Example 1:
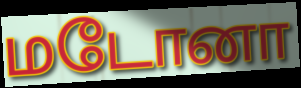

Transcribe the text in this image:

மடோனா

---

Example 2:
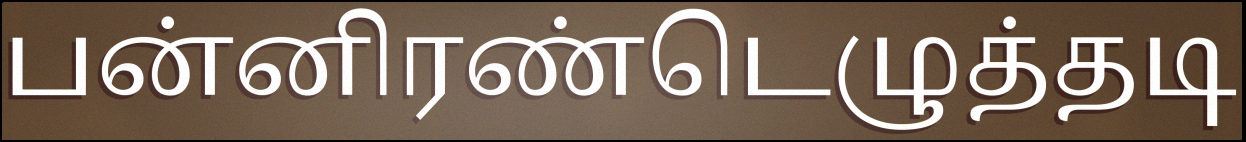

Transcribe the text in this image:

பன்னிரண்டெழுத்தடி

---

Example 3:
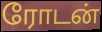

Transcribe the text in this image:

ரோடன்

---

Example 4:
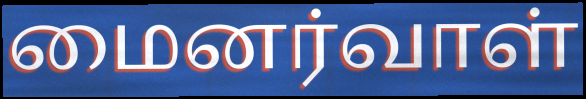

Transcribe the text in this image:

மைனர்வாள்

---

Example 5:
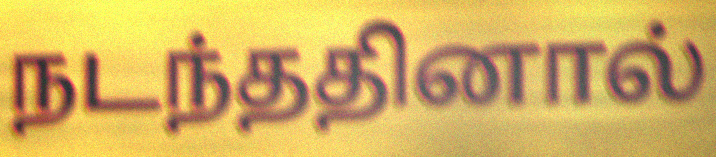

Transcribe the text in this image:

நடந்ததினால்